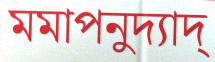
মমাপনুদ্যাদ্